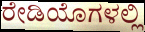
ರೇಡಿಯೊಗಳಲ್ಲಿ